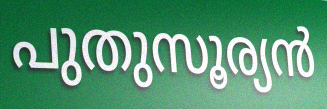
പുതുസൂര്യൻ